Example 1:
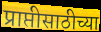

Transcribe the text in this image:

प्राप्तीसाठीच्या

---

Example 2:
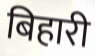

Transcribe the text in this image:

बिहारी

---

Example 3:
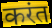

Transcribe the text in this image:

करंत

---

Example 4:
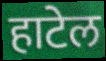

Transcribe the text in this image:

हाटेल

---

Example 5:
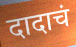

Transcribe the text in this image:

दादाचं